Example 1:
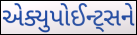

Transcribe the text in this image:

એક્યુપોઈન્ટ્સને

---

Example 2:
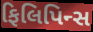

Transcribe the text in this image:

ફિલિપિન્સ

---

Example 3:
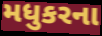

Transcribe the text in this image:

મધુકરના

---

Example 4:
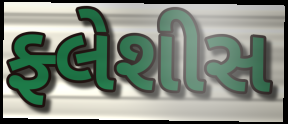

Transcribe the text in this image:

ફ્લેશીસ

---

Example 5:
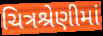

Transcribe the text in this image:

ચિત્રશ્રેણીમાં